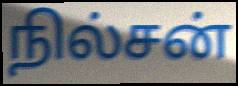
நில்சன்